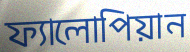
ফ্যালোপিয়ান